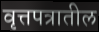
वृत्तपत्रातील